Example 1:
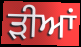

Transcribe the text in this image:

ੜੀਆਂ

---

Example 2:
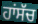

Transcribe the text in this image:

ਹਾਂਸੱਚ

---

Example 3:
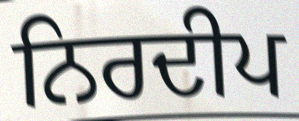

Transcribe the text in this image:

ਨਿਰਦੀਪ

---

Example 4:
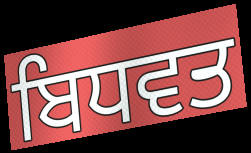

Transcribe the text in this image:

ਬਿਧਵਤ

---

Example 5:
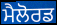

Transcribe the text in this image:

ਮੈਲੋਰਡ